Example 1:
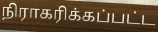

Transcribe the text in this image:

நிராகரிக்கப்பட்ட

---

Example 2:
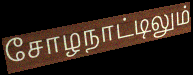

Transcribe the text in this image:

சோழநாட்டிலும்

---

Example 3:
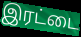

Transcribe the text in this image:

இரட்டை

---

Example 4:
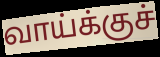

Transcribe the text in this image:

வாய்க்குச்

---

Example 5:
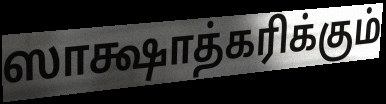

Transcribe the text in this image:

ஸாக்ஷாத்கரிக்கும்